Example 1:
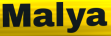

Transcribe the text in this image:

Malya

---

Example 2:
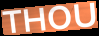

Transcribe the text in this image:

THOU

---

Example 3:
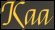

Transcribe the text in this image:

Kaa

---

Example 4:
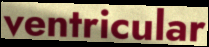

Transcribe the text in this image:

ventricular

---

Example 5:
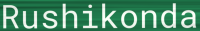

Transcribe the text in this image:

Rushikonda